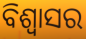
ବିଶ୍ବାସର